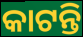
କାଟନ୍ତି